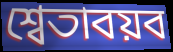
শ্বেতাবয়ব